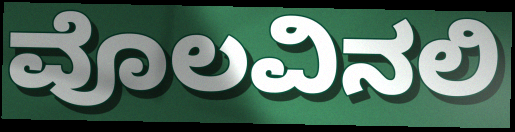
ವೊಲವಿನಲಿ